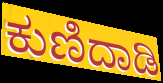
ಕುಣಿದಾಡಿ